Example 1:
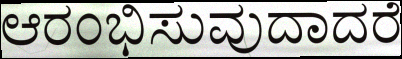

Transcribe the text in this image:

ಆರಂಭಿಸುವುದಾದರೆ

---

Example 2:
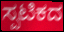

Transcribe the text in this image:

ಸ್ಪಟಿಕದ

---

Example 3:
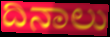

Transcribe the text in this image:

ದಿನಾಲು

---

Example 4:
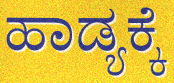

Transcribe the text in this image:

ಹಾಡ್ಯಕ್ಕೆ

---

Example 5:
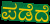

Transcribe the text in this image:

ಪಡೆದೆ